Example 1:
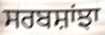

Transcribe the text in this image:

ਸਰਬਸ਼ਾਂਝਾ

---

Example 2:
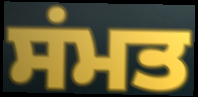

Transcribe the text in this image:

ਸਂਮਤ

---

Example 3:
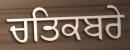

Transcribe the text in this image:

ਚਤਿਕਬਰੇ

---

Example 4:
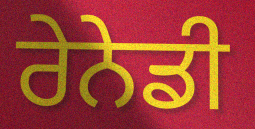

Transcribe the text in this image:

ਰੇਨੇਡੀ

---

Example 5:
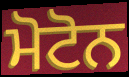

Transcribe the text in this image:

ਮੋਟੋਨ